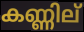
കണ്ണില്